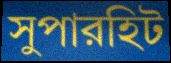
সুপারহিট